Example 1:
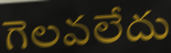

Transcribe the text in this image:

గెలవలేదు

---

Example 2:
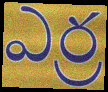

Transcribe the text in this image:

ఎర్ర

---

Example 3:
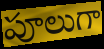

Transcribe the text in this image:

పూలుగా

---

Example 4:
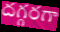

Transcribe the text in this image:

దగ్గరగా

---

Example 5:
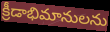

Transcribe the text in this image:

క్రీడాభిమానులను